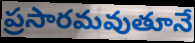
ప్రసారమవుతూనే